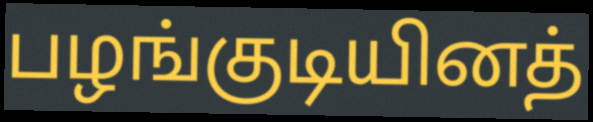
பழங்குடியினத்